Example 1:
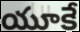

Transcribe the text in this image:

యూకే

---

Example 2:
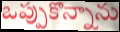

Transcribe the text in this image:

ఒప్పుకొన్నాను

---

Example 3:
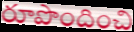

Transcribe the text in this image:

రూపొందించి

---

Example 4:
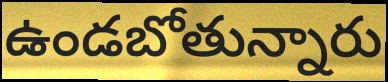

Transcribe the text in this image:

ఉండబోతున్నారు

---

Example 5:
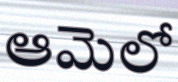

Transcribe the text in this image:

ఆమెలో